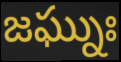
జఘ్నుః